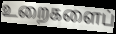
உறைகளைப்